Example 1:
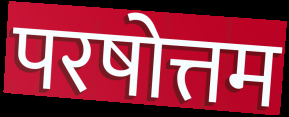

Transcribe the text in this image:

परषोत्तम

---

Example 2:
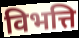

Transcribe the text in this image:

विभत्ति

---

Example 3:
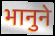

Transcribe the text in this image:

भानुने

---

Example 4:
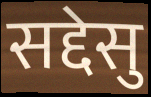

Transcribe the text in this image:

सद्देसु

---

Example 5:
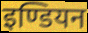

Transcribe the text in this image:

इण्डियन